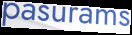
pasurams